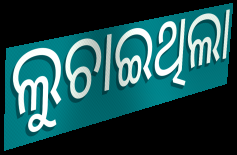
ଲୁଚାଇଥିଲା